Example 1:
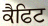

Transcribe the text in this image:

ਕੈਫਿਟ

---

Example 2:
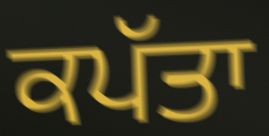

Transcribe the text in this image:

ਕਪੱਤਾ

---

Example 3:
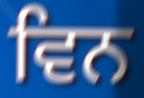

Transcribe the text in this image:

ਵਿਨ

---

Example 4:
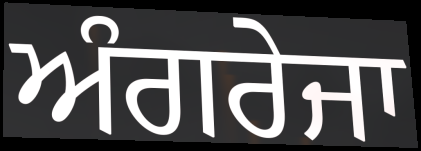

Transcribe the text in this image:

ਅੰਗਰੇਜਾ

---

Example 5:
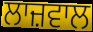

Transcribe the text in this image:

ਲਾਜ਼ਵਾਲ